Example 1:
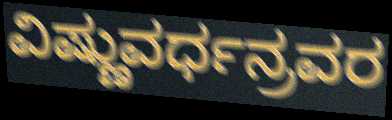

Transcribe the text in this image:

ವಿಷ್ಣುವರ್ಧನ್ರವರ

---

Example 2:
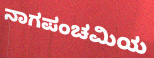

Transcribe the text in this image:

ನಾಗಪಂಚಮಿಯ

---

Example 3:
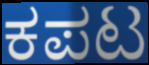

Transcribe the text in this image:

ಕಪಟ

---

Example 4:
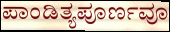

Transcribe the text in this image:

ಪಾಂಡಿತ್ಯಪೂರ್ಣವೂ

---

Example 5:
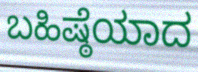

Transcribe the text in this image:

ಬಹಿಷ್ಠೆಯಾದ